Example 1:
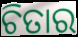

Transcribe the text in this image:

ଚିତାର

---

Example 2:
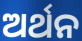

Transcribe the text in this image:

ଅର୍ଥନ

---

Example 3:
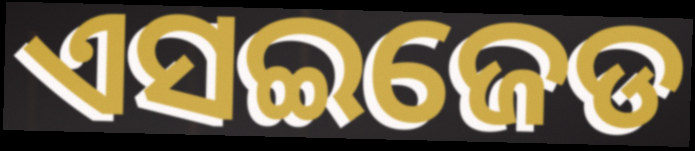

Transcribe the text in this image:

ଏସଇଜେଡ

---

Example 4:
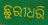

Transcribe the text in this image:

ଛୁରୀଧରି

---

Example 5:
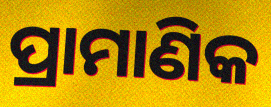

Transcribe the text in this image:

ପ୍ରାମାଣିକ